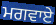
ਮਗਵਾਏ